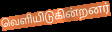
வெளியிடுகின்றனர்